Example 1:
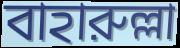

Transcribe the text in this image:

বাহারুল্লা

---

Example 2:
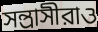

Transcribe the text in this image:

সন্ত্রাসীরাও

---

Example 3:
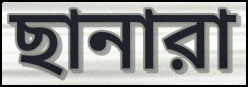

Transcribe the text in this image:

ছানারা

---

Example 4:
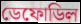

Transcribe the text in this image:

ডেফোডিল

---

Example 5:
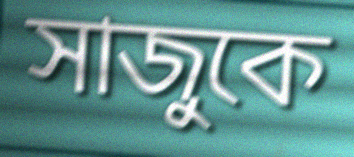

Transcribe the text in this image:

সাজুকে